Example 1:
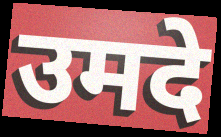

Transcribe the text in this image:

उमदे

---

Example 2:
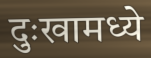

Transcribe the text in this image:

दुःखामध्ये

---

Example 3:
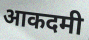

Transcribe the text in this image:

आकदमी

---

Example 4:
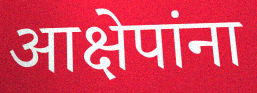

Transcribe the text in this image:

आक्षेपांना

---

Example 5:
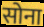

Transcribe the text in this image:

सोना